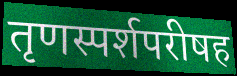
तृणस्पर्शपरीषह